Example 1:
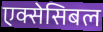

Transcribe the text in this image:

एक्सेसिबल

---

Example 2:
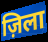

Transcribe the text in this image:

ज़िला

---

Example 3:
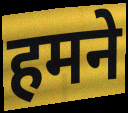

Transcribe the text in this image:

हमने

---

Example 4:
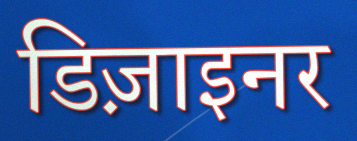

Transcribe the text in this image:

डिज़ाइनर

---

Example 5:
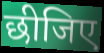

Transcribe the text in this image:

छीजिए